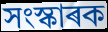
সংস্কাৰক